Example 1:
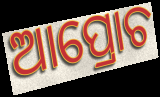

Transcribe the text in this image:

ଆପ୍ରୋଚ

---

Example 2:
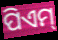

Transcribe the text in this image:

ପିଏମ୍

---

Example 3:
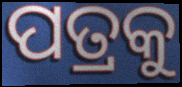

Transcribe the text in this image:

ପତ୍ରକୁ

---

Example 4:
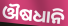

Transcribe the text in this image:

ଔଷଧାନି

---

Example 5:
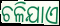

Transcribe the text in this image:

ଚଳିଯାଏ